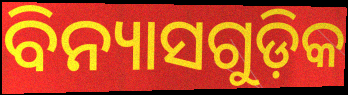
ବିନ୍ୟାସଗୁଡ଼ିକ